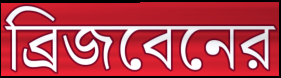
ব্রিজবেনের